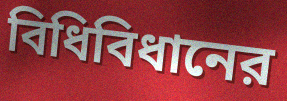
বিধিবিধানের